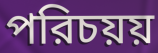
পরিচয়য়